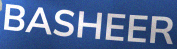
BASHEER